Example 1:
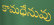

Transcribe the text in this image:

కామధేనువు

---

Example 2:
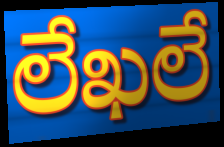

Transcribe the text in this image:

లేఖలే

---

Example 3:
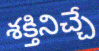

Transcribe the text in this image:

శక్తినిచ్చే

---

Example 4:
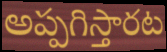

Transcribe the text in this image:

అప్పగిస్తారట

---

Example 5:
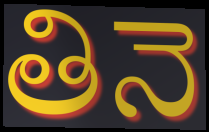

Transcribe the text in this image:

తినె